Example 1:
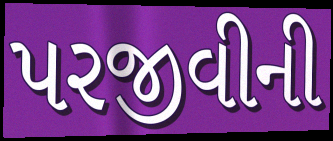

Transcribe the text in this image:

પરજીવીની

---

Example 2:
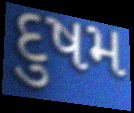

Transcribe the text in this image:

દુષમ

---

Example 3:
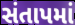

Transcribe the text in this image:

સંતાપમાં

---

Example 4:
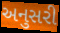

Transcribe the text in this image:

અનુસરી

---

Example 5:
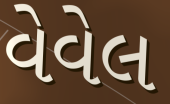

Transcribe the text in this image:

વેવેલ